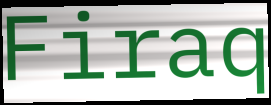
Firaq